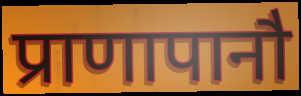
प्राणापानौ